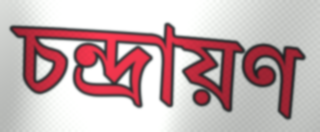
চন্দ্রায়ণ